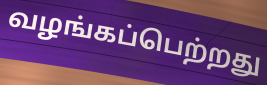
வழங்கப்பெற்றது